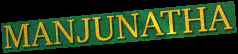
MANJUNATHA